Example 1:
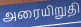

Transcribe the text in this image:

அரையிறுதி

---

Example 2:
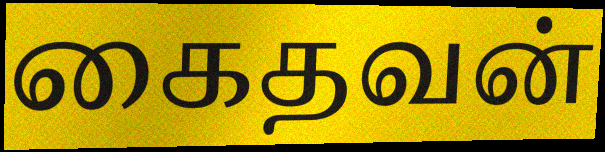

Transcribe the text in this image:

கைதவன்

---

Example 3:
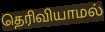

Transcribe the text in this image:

தெரிவியாமல்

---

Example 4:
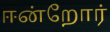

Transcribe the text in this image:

ஈன்றோர்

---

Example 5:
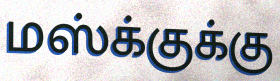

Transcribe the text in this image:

மஸ்க்குக்கு